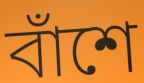
বাঁশে